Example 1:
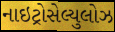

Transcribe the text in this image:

નાઇટ્રોસેલ્યુલોઝ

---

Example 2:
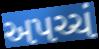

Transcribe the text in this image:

અપચ્ચં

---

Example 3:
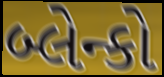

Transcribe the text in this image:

બ્લેન્કો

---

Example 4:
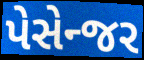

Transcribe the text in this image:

પેસેન્જર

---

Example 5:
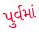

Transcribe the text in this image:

પુર્વમાં